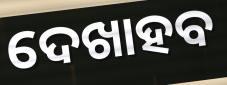
ଦେଖାହବ